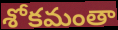
శోకమంతా